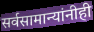
सर्वसामान्यांनीही